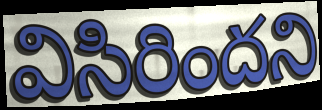
విసిరిందని